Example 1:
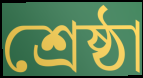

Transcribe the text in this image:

শ্রেষ্ঠা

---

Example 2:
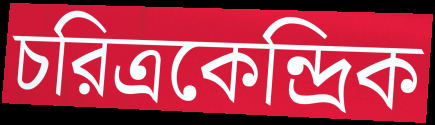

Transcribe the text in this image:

চরিত্রকেন্দ্রিক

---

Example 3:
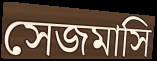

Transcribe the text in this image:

সেজমাসি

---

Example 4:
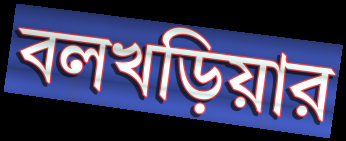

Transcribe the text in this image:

বলখড়িয়ার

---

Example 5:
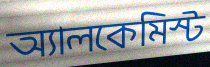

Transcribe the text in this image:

অ্যালকেমিস্ট